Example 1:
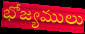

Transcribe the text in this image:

భోజ్యములు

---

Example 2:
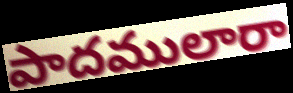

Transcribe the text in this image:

పాదములారా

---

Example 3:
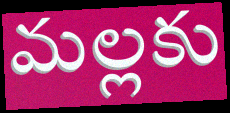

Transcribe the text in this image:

మల్లకు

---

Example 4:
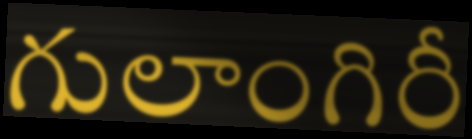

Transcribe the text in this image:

గులాంగిరీ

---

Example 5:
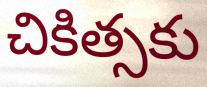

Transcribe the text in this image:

చికిత్సకు